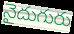
నైదుగురు